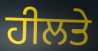
ਹੀਲਤੇ